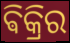
ଵିକ୍ରିର